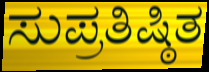
ಸುಪ್ರತಿಷ್ಠಿತ